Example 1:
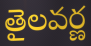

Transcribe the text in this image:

తైలవర్ణ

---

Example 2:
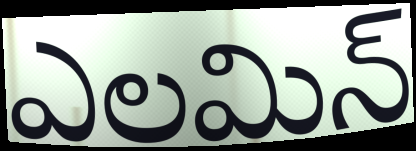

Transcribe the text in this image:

ఎలమిన్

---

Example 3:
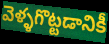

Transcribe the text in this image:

వెళ్ళగొట్టడానికీ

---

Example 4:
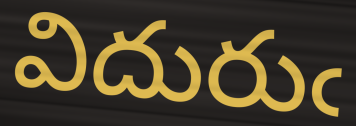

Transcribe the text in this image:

విదురుఁ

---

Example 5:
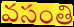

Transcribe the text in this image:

వసంతి